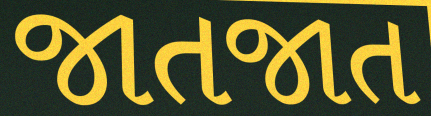
જાતજાત